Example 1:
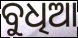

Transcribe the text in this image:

ବୁଧିଆ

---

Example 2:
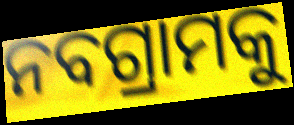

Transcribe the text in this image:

ନବଗ୍ରାମକୁ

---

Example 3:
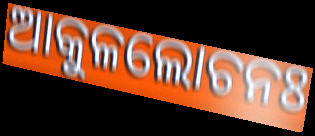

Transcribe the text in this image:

ଆକୁଳଲୋଚନଃ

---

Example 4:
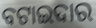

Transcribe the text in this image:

ବଟାଇଦାର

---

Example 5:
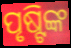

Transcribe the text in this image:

ପୃଷ୍ଟିଙ୍କ